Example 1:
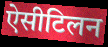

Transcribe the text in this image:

ऐसीटिलन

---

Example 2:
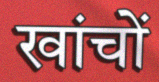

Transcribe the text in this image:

खांचों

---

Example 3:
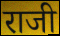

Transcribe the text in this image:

राजी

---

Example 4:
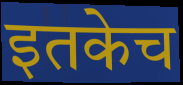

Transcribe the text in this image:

इतकेच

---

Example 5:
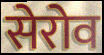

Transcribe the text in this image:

सेरोव